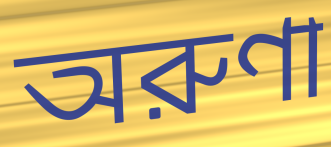
অৰুণা